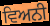
ਵਿਅਨੀ